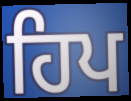
ਹਿਪ